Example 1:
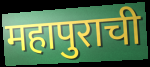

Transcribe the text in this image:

महापुराची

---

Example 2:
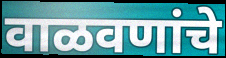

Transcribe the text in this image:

वाळवणांचे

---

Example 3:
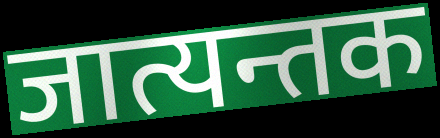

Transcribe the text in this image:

जात्यन्तक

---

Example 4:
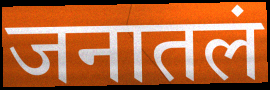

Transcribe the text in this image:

जनातलं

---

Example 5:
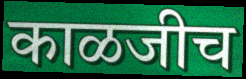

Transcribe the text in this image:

काळजीच